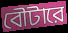
বৌটারে